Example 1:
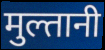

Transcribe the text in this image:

मुल्‍तानी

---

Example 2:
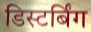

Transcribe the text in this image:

डिस्टर्बिंग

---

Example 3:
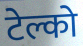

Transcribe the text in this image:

टेल्को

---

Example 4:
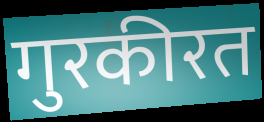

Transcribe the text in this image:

गुरकीरत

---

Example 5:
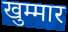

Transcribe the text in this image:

खुम्मार